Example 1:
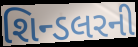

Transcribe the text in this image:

શિન્ડલરની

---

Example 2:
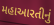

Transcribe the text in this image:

મહાઆરતીનું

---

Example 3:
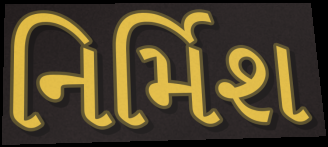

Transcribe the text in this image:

નિર્મિશ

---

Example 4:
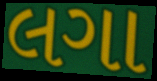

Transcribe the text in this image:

લગા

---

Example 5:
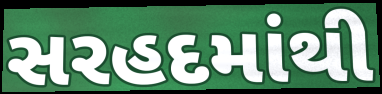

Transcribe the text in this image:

સરહદમાંથી